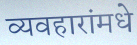
व्यवहारांमधे